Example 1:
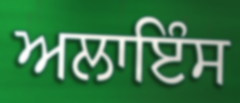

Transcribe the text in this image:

ਅਲਾਇੰਸ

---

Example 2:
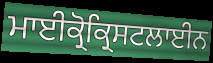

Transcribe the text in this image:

ਮਾਈਕ੍ਰੋਕ੍ਰਿਸਟਲਾਈਨ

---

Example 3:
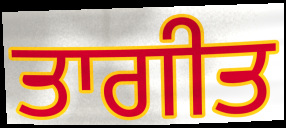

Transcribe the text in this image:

ਤਾਗੀਤ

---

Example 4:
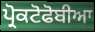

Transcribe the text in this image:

ਪ੍ਰੋਕਟੋਫੋਬੀਆ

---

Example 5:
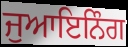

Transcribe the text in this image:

ਜੁਆਇਨਿੰਗ